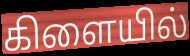
கிளையில்